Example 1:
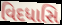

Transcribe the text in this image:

વિદધાસિ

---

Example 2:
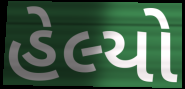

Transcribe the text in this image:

હેલ્યો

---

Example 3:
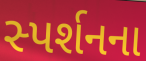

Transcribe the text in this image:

સ્પર્શનના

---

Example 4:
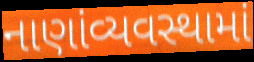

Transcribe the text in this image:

નાણાંવ્યવસ્થામાં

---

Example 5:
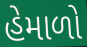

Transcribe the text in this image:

હેમાળો